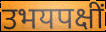
उभयपक्षीं